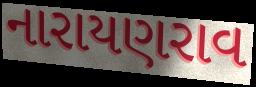
નારાયણરાવ